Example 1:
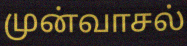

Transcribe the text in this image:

முன்வாசல்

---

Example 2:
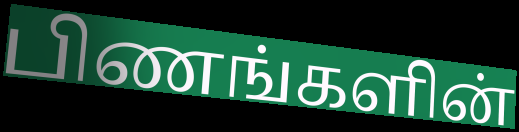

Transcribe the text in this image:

பிணங்களின்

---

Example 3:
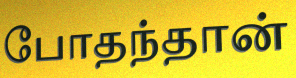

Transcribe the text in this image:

போதந்தான்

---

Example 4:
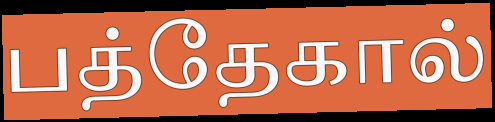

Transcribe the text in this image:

பத்தேகால்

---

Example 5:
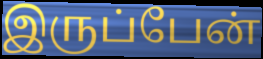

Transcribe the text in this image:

இருப்பேன்